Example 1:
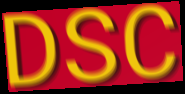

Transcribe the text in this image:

DSC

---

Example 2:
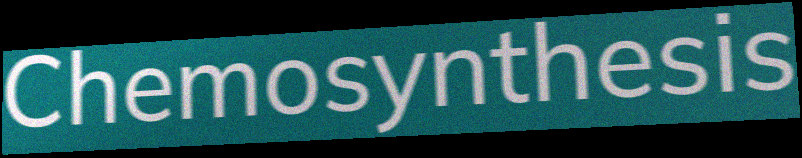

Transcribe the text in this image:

Chemosynthesis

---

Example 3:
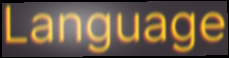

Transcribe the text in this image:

Language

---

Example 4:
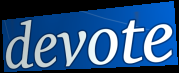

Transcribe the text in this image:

devote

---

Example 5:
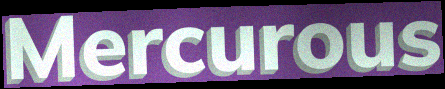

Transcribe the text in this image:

Mercurous